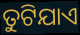
ତୁଟିଯାଏ